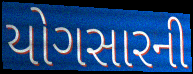
યોગસારની